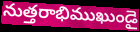
నుత్తరాభిముఖుండై